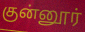
குன்னூர்